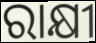
ରାକ୍ଷୀ